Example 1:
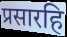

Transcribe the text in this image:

प्रसारहि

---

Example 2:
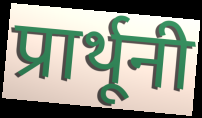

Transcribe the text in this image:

प्रार्थूनी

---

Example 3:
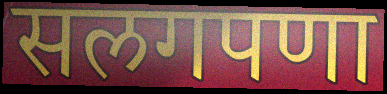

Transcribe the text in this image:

सलगपणा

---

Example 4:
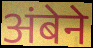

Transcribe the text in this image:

अंबेने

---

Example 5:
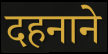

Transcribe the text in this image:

दहनाने